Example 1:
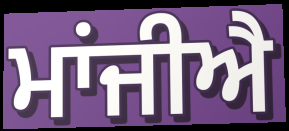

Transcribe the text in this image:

ਮਾਂਜੀਐ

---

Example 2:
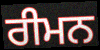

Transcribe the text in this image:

ਰੀਮਨ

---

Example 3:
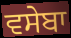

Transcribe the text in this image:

ਵਸੇਬਾ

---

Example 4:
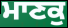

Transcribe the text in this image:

ਮਾਣਕੁ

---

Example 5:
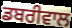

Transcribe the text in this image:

ਡਬਰੀਵਾਲ